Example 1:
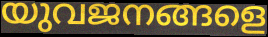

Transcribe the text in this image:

യുവജനങ്ങളെ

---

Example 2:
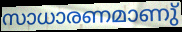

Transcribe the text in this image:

സാധാരണമാണു്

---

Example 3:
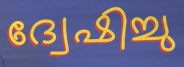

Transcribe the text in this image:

ദ്വേഷിച്ചു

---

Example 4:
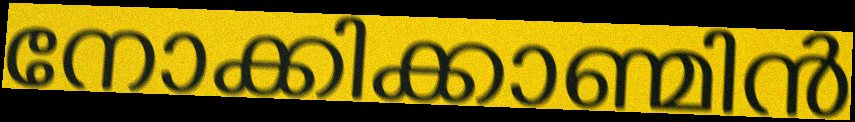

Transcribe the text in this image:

നോക്കിക്കാണ്മിൻ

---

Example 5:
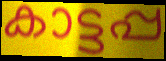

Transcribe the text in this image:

കാട്ടപ്പ